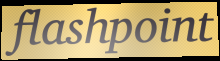
flashpoint